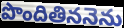
పొందితిననెను